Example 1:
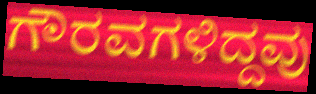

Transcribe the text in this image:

ಗೌರವಗಳಿದ್ದವು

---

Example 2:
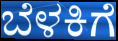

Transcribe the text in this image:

ಬೆಳಕಿಗೆ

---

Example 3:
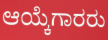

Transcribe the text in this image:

ಆಯ್ಕೆಗಾರರು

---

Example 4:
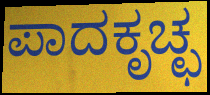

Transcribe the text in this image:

ಪಾದಕೃಚ್ಛ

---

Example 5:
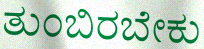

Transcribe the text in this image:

ತುಂಬಿರಬೇಕು